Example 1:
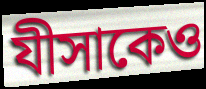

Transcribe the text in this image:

যীসাকেও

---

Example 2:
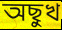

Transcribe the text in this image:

অছুখ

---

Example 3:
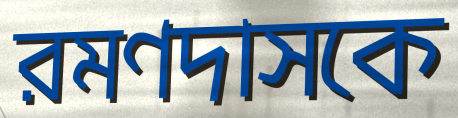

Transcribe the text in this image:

রমণদাসকে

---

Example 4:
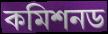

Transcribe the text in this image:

কমিশনড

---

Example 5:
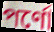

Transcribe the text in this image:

পর্ণো